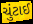
ચુંટાઈ